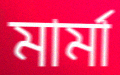
মার্মা